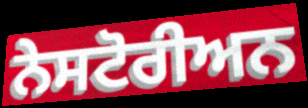
ਨੇਸਟੋਰੀਅਨ